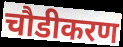
चौडीकरण